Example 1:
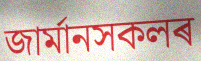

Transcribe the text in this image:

জাৰ্মানসকলৰ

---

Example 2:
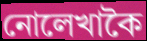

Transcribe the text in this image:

নোলেখাকৈ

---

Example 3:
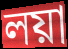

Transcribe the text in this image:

লয়া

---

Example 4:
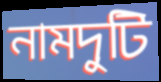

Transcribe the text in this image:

নামদুটি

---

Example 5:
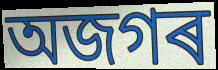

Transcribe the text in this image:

অজগৰ